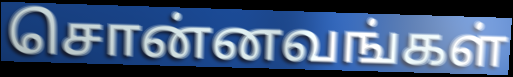
சொன்னவங்கள்